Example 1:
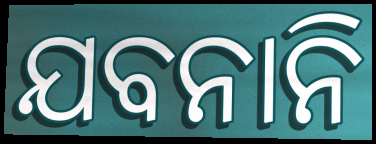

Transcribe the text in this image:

ଯବନାନି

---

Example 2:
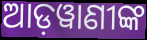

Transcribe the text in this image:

ଆଡ଼ୱାଣୀଙ୍କ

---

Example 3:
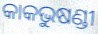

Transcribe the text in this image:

କାକଭୁଷଣ୍ଡୀ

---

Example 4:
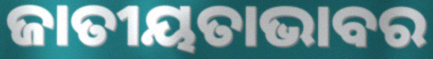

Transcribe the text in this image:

ଜାତୀୟତାଭାବର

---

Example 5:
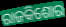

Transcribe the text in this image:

ରାଜକିଶୋର